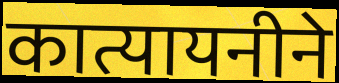
कात्यायनीने